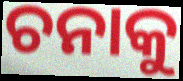
ଚନାକୁ